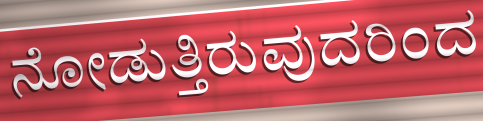
ನೋಡುತ್ತಿರುವುದರಿಂದ